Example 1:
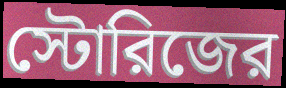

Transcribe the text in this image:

স্টোরিজের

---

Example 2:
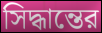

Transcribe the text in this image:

সিদ্ধান্তের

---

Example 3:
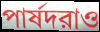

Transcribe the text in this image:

পার্ষদরাও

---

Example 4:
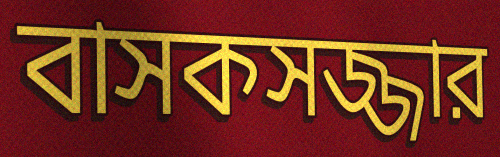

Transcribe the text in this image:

বাসকসজ্জার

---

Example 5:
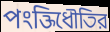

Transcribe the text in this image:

পংক্তিধৌতির